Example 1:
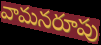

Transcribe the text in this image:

వామనరూపు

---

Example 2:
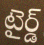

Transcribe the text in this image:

టైర్డ్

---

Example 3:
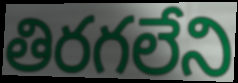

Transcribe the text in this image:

తిరగలేని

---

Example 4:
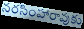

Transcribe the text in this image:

నరసింహారావుకు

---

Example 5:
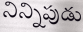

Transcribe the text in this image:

నిన్నిపుడు